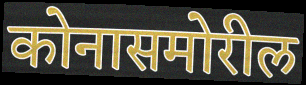
कोनासमोरील